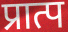
प्रात्प